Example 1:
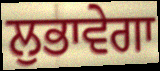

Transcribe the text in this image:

ਲੁਭਾਵੇਗਾ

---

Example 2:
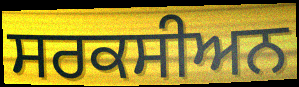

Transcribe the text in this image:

ਸਰਕਸੀਅਨ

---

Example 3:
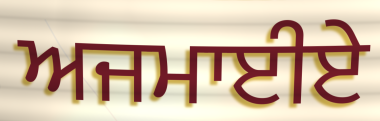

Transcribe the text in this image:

ਅਜਮਾਈਏ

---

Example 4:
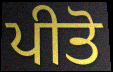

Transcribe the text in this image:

ਪੀਤੋ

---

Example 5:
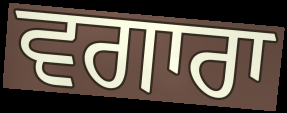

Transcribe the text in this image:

ਵਗਾਰਾ